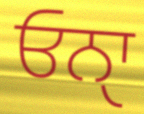
ਓਨਾੑ